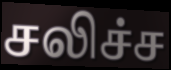
சலிச்ச